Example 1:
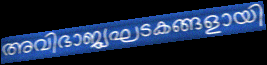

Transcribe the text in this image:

അവിഭാജ്യഘടകങ്ങളായി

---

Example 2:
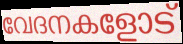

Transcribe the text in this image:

വേദനകളോട്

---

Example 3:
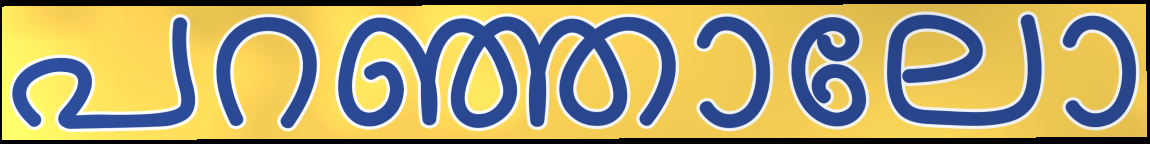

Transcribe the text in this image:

പറഞ്ഞാലോ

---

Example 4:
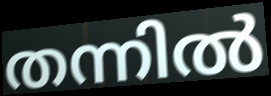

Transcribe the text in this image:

തന്നിൽ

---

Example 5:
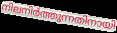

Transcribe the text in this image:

നിലനിർത്തുന്നതിനായി